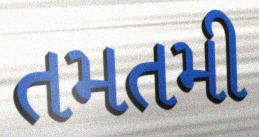
તમતમી